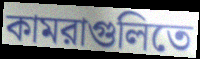
কামরাগুলিতে